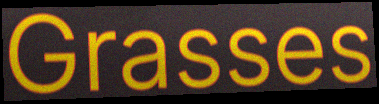
Grasses